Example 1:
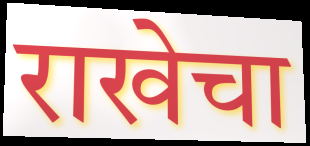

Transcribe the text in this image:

राखेचा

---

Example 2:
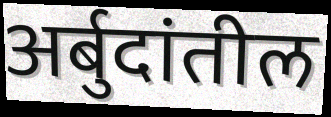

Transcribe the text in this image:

अर्बुदांतील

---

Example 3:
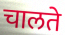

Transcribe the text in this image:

चालते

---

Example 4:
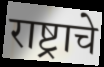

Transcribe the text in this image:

राष्ट्राचे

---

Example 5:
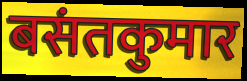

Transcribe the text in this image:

बसंतकुमार